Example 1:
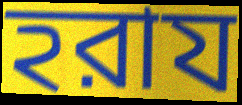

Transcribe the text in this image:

হরায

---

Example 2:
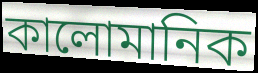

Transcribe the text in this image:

কালোমানিক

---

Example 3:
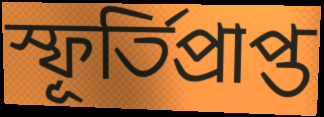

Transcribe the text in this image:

স্ফূর্তিপ্রাপ্ত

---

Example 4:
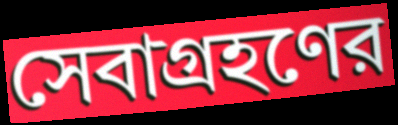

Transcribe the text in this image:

সেবাগ্রহণের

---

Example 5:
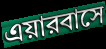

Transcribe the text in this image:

এয়ারবাসে